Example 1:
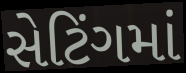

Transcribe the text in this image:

સેટિંગમાં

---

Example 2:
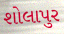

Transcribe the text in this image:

શોલાપુર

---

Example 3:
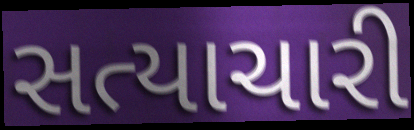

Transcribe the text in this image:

સત્યાચારી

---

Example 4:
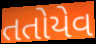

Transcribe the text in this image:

તતોયેવ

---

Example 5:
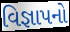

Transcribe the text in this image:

વિજ્ઞાપનો